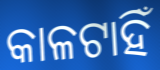
କାଳଟାହିଁ